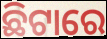
ଛିଟାରେ